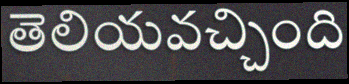
తెలియవచ్చింది